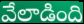
వేలాడింది